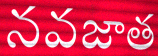
నవజాత